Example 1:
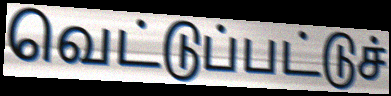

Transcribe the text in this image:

வெட்டுப்பட்டுச்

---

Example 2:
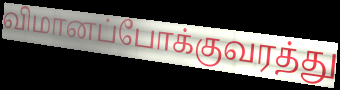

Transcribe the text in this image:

விமானப்போக்குவரத்து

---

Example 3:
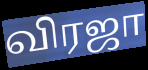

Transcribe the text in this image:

விரஜா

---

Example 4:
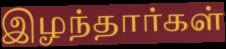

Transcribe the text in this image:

இழந்தார்கள்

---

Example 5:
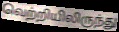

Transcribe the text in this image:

வெற்றியிலிருந்து